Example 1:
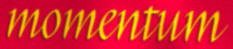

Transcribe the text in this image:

momentum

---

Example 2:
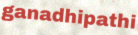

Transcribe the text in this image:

ganadhipathi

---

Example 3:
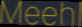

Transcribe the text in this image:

Meehl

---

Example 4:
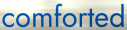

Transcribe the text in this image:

comforted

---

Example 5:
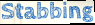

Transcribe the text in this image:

Stabbing